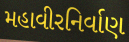
મહાવીરનિર્વાણ